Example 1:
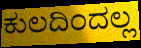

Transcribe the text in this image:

ಕುಲದಿಂದಲ್ಲ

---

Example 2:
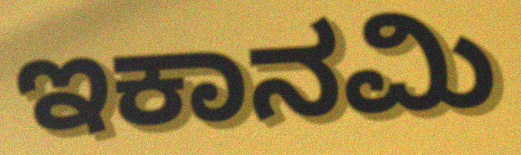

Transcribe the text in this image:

ಇಕಾನಮಿ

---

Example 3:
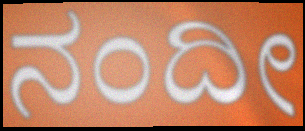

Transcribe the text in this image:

ನಂದೀ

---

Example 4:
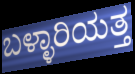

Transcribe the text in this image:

ಬಳ್ಳಾರಿಯತ್ತ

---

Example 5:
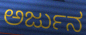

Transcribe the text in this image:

ಅರ್ಜುನ